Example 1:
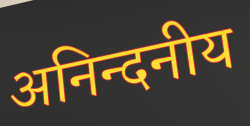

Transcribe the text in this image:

अनिन्दनीय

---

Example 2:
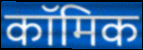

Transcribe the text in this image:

कॉमिक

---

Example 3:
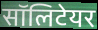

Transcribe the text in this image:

सॉलिटेयर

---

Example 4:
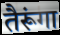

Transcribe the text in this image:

तैरूंगा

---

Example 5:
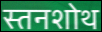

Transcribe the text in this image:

स्तनशोथ